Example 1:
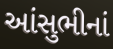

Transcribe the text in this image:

આંસુભીનાં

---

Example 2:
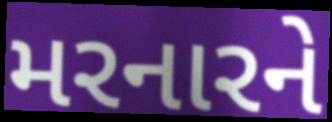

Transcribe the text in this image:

મરનારને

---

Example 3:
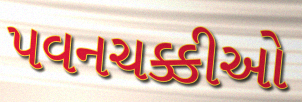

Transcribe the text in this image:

પવનચક્કીઓ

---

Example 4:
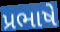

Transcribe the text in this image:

પ્રભાષે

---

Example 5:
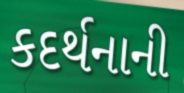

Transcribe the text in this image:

કદર્થનાની